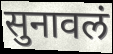
सुनावलं